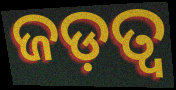
ଜଡ଼ତ୍ଵ